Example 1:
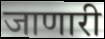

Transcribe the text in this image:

जाणारी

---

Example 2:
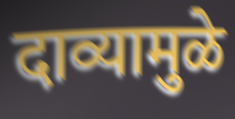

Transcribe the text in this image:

दाव्यामुळे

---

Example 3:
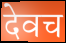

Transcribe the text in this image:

देवच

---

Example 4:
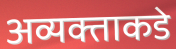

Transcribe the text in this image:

अव्यक्ताकडे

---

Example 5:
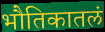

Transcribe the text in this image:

भौतिकातलं